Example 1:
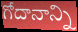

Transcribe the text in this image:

గోదానాన్ని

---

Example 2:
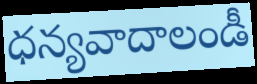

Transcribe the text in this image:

ధన్యవాదాలండీ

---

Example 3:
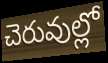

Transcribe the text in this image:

చెరువుల్లో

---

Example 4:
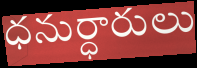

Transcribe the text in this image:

ధనుర్ధారులు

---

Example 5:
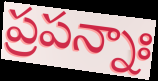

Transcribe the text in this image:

ప్రపన్నాః